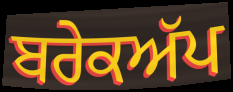
ਬਰੇਕਅੱਪ